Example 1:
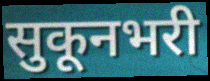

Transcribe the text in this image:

सुकूनभरी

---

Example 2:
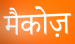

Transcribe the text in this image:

मैकोज़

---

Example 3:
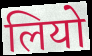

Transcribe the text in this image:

लियो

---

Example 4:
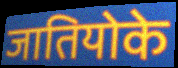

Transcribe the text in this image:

जातियोके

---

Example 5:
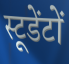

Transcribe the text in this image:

स्टूडेंटों